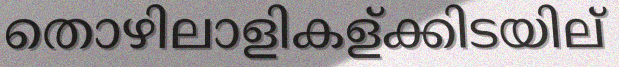
തൊഴിലാളികള്ക്കിടയില്